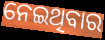
ନେଇଥିବାର